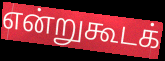
என்றுகூடக்